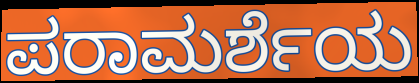
ಪರಾಮರ್ಶೆಯ